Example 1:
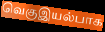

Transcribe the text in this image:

வெகுஇயல்பாக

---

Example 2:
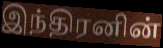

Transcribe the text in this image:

இந்திரனின்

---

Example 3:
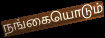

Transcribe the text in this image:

நங்கையொடும்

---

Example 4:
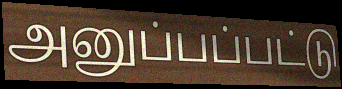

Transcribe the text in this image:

அனுப்பப்பட்டு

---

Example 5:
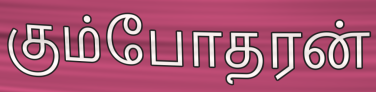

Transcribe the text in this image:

கும்போதரன்